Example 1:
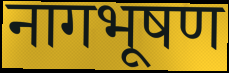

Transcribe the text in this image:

नागभूषण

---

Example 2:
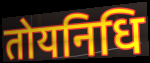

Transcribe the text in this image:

तोयनिधि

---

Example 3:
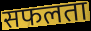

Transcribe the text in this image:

सफलता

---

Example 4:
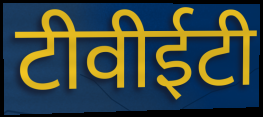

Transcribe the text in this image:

टीवीईटी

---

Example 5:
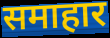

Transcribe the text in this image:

समाहार